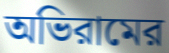
অভিরামের